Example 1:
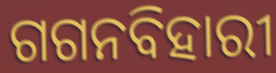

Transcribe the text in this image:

ଗଗନବିହାରୀ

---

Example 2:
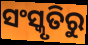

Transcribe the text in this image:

ସଂସ୍କୃତିରୁ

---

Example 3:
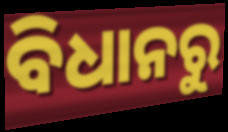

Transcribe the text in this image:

ବିଧାନରୁ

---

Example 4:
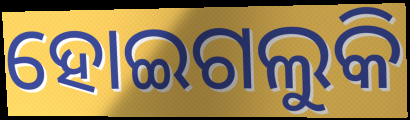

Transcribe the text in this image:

ହୋଇଗଲୁକି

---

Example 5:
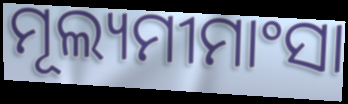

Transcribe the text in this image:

ମୂଲ୍ୟମୀମାଂସା